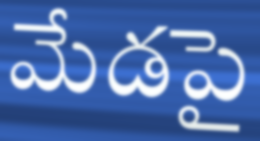
మేడపై